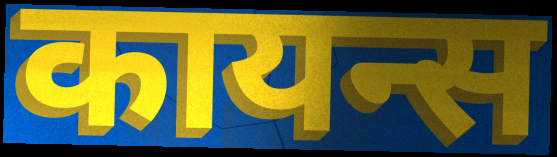
कायन्स